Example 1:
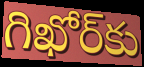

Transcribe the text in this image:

గిఖోర్‌కు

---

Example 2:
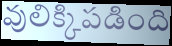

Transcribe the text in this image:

వులిక్కిపడింది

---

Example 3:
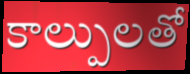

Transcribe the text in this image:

కాల్పులతో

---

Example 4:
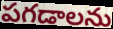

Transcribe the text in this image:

పగడాలను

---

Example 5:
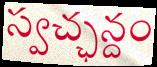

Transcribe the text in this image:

స్వచ్ఛన్దం